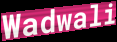
Wadwali